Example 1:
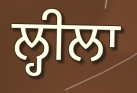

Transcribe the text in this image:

ਲ੍ਹੀਲਾ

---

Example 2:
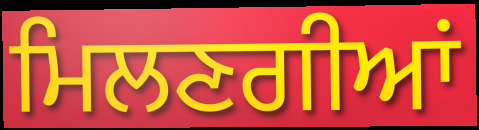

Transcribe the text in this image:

ਮਿਲਣਗੀਆਂ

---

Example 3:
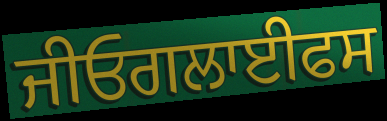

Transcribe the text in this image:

ਜੀਓਗਲਾਈਫਸ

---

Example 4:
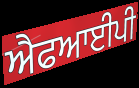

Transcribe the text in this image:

ਐਫਆਈਪੀ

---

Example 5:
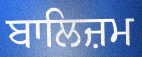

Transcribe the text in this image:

ਬਾਲਿਜ਼ਮ